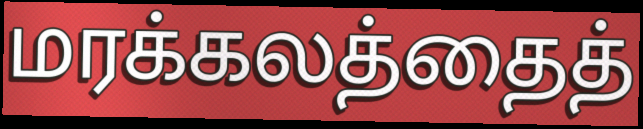
மரக்கலத்தைத்